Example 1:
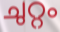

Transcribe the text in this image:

ചുറ്റം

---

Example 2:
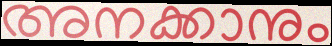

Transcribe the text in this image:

അനക്കാനും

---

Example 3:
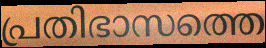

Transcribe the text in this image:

പ്രതിഭാസത്തെ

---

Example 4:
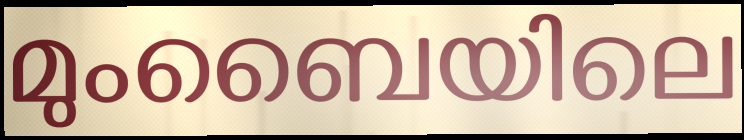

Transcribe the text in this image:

മുംബൈയിലെ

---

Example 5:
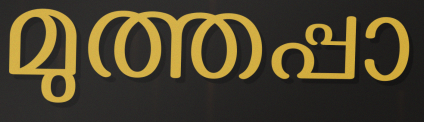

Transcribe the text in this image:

മുത്തപ്പാ